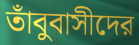
তাঁবুবাসীদের